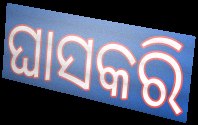
ଘାସକରି